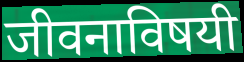
जीवनाविषयी